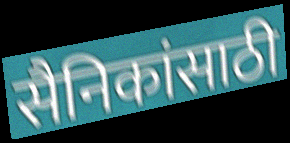
सैनिकांसाठी